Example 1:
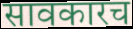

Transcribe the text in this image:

सावकारच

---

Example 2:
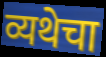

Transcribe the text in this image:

व्यथेचा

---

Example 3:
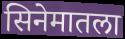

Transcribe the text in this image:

सिनेमातला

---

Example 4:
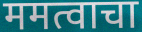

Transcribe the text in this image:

ममत्वाचा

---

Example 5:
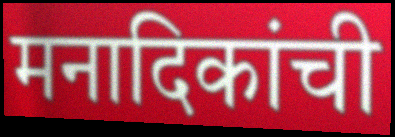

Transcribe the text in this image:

मनादिकांची